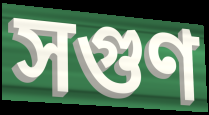
সগুণ